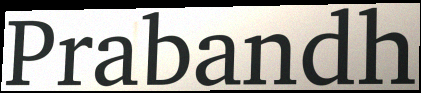
Prabandh